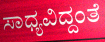
ಸಾಧ್ಯವಿದ್ದಂತೆ